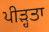
ਪੀੜ੍ਹਤਾ